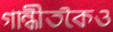
গান্ধীতকৈও